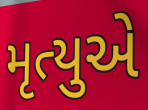
મૃત્યુએ